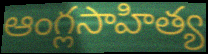
ఆంగ్లసాహిత్య